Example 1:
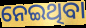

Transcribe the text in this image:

ନେଇଥିବା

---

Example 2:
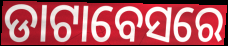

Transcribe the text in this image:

ଡାଟାବେସରେ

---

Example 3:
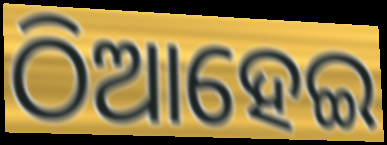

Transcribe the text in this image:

ଠିଆହେଇ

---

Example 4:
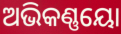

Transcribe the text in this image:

ଅଭିକଣ୍ଣୟୋ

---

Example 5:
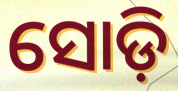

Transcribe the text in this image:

ସୋଡ଼ି